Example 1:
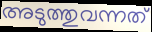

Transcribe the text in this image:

അടുത്തുവന്നത്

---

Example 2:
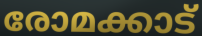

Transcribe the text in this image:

രോമക്കാട്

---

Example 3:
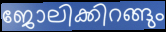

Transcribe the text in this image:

ജോലിക്കിറങ്ങും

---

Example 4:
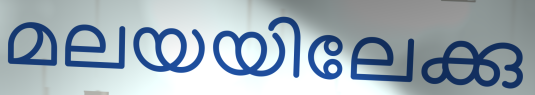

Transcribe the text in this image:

മലയയിലേക്കു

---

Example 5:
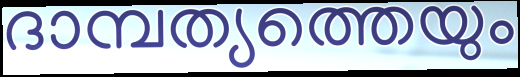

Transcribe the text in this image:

ദാമ്പത്യത്തെയും